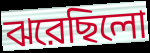
ঝরেছিলো